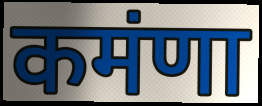
कमंणा